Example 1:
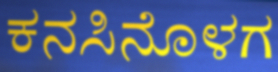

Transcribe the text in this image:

ಕನಸಿನೊಳಗ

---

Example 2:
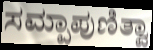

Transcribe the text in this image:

ಸಮ್ಪಾಪುಣಿತ್ವಾ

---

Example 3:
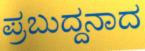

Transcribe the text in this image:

ಪ್ರಬುದ್ದನಾದ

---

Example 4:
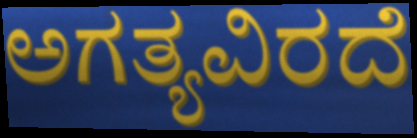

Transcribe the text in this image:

ಅಗತ್ಯವಿರದೆ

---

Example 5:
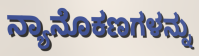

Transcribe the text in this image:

ನ್ಯಾನೊಕಣಗಳನ್ನು